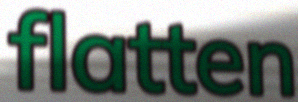
flatten